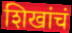
शिखांचं